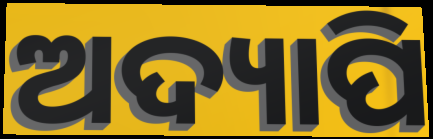
ଅଦ୍ୟାପି